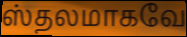
ஸ்தலமாகவே